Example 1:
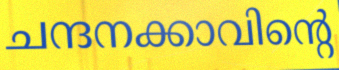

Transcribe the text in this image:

ചന്ദനക്കാവിന്റെ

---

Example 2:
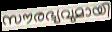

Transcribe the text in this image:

സൗരഭ്യവുമായി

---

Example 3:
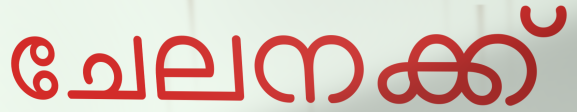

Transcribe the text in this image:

ചേലനക്ക്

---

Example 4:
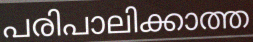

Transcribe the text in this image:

പരിപാലിക്കാത്ത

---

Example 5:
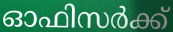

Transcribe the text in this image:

ഓഫിസർക്ക്